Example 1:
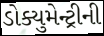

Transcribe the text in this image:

ડોક્યુમેન્ટ્રીની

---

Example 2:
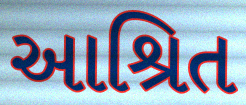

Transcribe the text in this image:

આશ્રિત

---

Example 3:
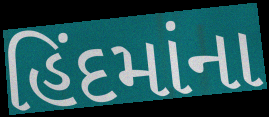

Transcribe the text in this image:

હિંદમાંના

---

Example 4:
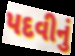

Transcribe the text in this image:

પદવીનું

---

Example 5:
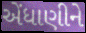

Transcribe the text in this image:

એંધાણીને